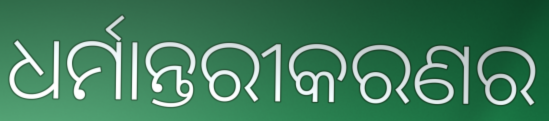
ଧର୍ମାନ୍ତରୀକରଣର